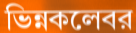
ভিন্নকলেবর